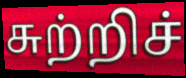
சுற்றிச்